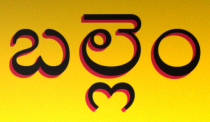
బల్లెం